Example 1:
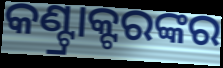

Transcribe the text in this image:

କଣ୍ଟ୍ରାକ୍ଟରଙ୍କର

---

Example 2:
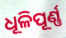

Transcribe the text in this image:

ଧୂଳିପୂର୍ଣ୍ଣ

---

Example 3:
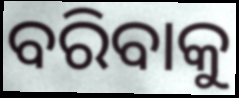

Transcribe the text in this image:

ବରିବାକୁ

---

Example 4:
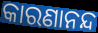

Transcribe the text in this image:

କାରଣାନନ୍ଦ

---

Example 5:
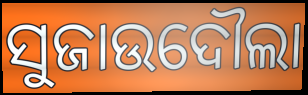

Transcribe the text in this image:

ସୁଜାଉଦୌଲା